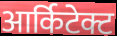
आर्किटेक्ट